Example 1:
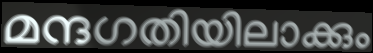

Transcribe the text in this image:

മന്ദഗതിയിലാക്കും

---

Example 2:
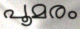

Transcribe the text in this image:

പൂമരം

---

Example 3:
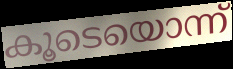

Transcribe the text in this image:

കൂടെയൊന്ന്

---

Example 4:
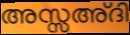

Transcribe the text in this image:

അസ്സഅ്ദി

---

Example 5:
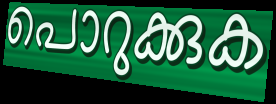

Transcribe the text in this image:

പൊറുക്കുക